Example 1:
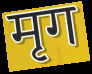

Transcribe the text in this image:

मृग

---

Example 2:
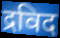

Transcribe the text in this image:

द्रविद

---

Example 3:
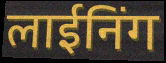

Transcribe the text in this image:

लाईनिंग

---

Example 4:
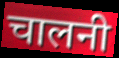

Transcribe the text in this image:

चालनी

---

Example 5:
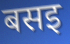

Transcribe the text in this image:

बसइ